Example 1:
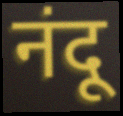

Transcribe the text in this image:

नंदू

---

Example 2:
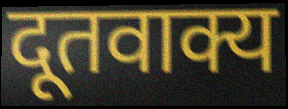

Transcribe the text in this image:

दूतवाक्य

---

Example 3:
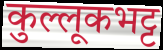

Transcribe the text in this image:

कुल्लूकभट्ट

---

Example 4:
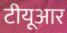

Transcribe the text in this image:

टीयूआर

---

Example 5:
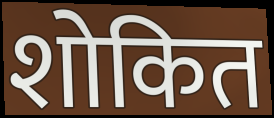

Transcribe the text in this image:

शोकित